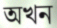
অখন